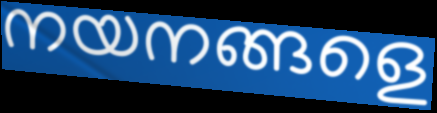
നയനങ്ങളെ